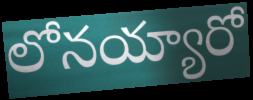
లోనయ్యారో